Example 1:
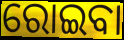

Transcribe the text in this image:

ରୋଇବା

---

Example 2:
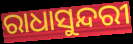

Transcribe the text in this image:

ରାଧାସୁନ୍ଦରୀ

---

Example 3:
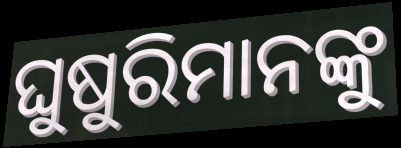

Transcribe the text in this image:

ଘୁଷୁରିମାନଙ୍କୁ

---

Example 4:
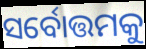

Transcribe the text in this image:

ସର୍ବୋତ୍ତମକୁ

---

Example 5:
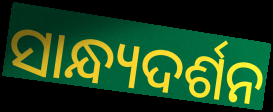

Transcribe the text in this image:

ସାନ୍ଧ୍ୟଦର୍ଶନ